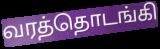
வரத்தொடங்கி